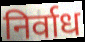
निर्वाध